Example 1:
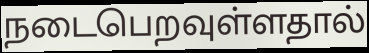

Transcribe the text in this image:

நடைபெறவுள்ளதால்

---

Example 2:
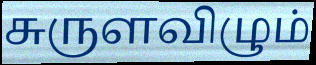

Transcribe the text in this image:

சுருளவிழும்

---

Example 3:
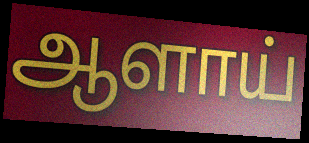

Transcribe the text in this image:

ஆளாய்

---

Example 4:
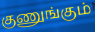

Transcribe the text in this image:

குணுங்கும்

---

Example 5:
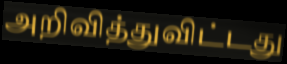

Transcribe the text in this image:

அறிவித்துவிட்டது